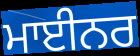
ਮਾਈਨਰ